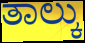
ತಾಲ್ಕು